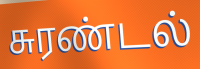
சுரண்டல்